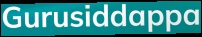
Gurusiddappa